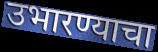
उभारण्याचा